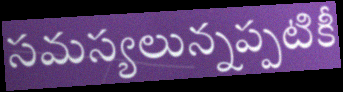
సమస్యలున్నప్పటికీ